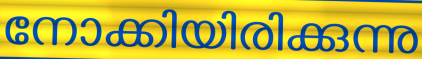
നോക്കിയിരിക്കുന്നു